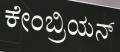
ಕೇಂಬ್ರಿಯನ್